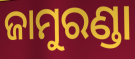
ଜାମୁରଣ୍ଡା